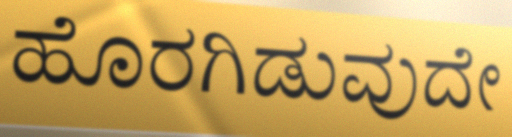
ಹೊರಗಿಡುವುದೇ